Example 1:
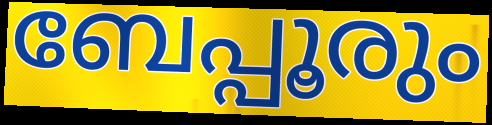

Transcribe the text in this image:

ബേപ്പൂരും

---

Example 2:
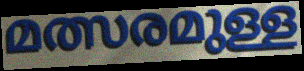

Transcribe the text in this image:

മത്സരമുള്ള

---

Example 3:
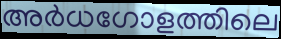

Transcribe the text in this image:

അർധഗോളത്തിലെ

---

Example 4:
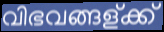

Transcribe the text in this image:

വിഭവങ്ങള്ക്ക്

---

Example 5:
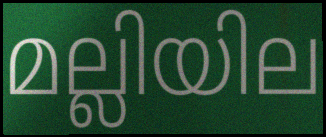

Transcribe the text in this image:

മല്ലിയില